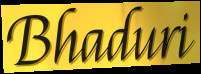
Bhaduri